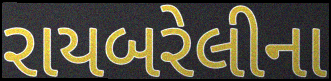
રાયબરેલીના